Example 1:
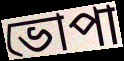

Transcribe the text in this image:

ভোপা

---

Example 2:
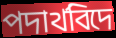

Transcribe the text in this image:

পদাৰ্থবিদে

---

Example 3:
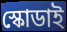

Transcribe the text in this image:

স্কোডাই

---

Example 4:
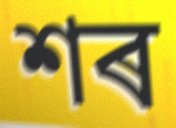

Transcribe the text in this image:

শৰ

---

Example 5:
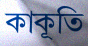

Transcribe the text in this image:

কাকূতি